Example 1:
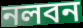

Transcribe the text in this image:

নলবন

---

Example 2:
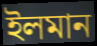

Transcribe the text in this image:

ইলমান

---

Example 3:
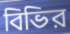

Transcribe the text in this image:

বিভির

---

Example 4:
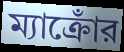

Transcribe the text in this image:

ম্যাক্রোঁর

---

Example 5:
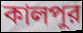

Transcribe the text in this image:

কালপুর